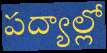
పద్యాల్లో